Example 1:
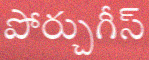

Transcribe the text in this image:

పోర్చుగీస్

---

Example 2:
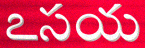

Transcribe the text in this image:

ఽసయ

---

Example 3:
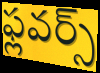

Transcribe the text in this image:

ఫ్లవర్స్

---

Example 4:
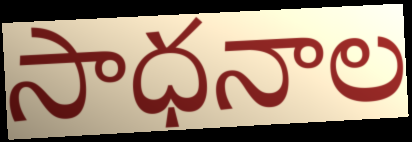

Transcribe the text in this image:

సాధనాల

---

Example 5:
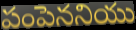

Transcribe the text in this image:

పంపెననియు